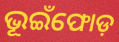
ଭୂଇଁଫୋଡ଼